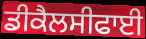
ਡੀਕੈਲਸੀਫਾਈ